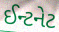
ઈન્ટનેટ